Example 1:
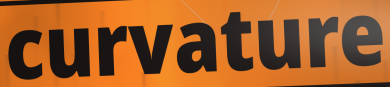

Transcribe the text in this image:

curvature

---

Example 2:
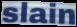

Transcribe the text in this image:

slain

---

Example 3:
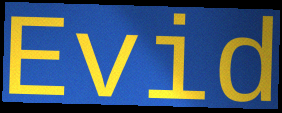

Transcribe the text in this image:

Evid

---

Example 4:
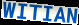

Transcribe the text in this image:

WITIAN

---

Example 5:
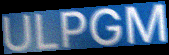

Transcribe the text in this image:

ULPGM